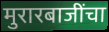
मुरारबाजींचा